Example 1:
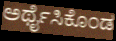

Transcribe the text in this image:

ಅರ್ಥೈಸಿಕೊಂಡ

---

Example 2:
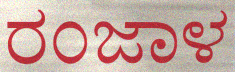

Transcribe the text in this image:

ರಂಜಾಳ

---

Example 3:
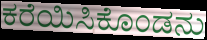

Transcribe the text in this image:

ಕರೆಯಿಸಿಕೊಂಡನು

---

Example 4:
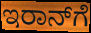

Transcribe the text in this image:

ಇರಾನ್‌ಗೆ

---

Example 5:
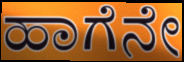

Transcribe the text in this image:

ಹಾಗೆನೇ